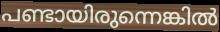
പണ്ടായിരുന്നെങ്കിൽ